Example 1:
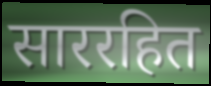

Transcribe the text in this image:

साररहित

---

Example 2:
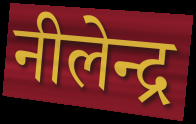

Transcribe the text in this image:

नीलेन्द्र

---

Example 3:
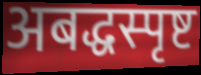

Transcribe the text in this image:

अबद्धस्पृष्ट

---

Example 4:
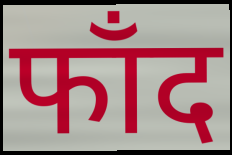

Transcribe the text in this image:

फाँद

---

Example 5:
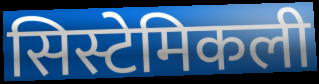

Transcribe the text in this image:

सिस्टेमिकली